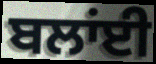
ਬਲਾਂਈ